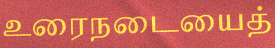
உரைநடையைத்